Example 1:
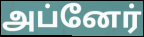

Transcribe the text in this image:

அப்னேர்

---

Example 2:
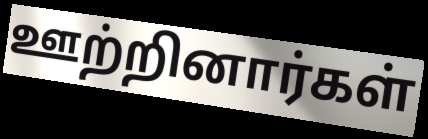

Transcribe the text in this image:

ஊற்றினார்கள்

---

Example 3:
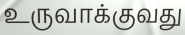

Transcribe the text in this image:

உருவாக்குவது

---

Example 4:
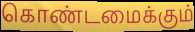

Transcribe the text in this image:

கொண்டமைக்கும்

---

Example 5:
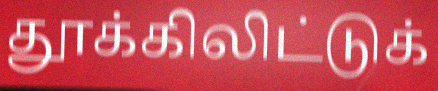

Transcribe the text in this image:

தூக்கிலிட்டுக்